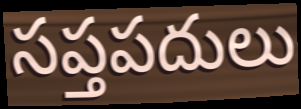
సప్తపదులు